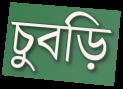
চুবড়ি